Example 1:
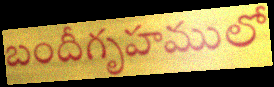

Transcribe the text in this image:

బందీగృహములో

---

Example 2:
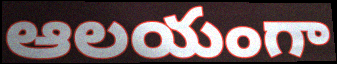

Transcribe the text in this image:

ఆలయంగా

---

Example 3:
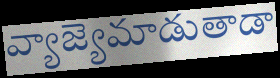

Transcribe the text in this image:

వ్యాజ్యెమాడుతాడా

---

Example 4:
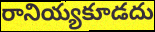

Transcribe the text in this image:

రానియ్యకూడదు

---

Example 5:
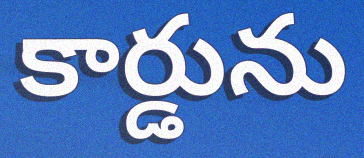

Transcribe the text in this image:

కార్డును